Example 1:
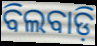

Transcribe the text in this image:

ବିଲବାଡ଼ି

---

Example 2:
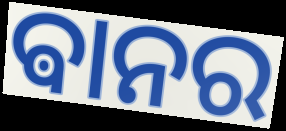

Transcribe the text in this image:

ଵାନର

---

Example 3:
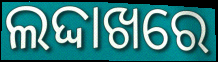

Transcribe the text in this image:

ଲଦ୍ଦାଖରେ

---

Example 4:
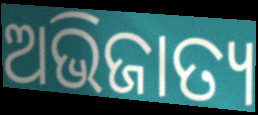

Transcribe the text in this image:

ଅଭିଜାତ୍ୟ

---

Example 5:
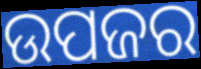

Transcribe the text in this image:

ଉପଜର